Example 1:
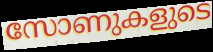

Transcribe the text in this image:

സോണുകളുടെ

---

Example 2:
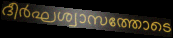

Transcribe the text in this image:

ദീർഘശ്വാസത്തോടെ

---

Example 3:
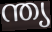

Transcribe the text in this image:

ന്ത്യ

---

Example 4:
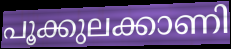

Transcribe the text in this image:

പൂക്കുലക്കാണി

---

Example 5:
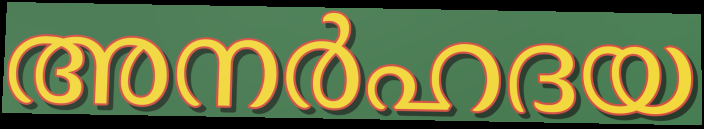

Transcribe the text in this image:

അനർഹദയ